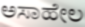
ಅಸಾಹೇಲ